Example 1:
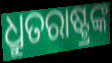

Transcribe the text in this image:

ଧ୍ରୁତରାଷ୍ଟ୍ରଙ୍କ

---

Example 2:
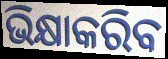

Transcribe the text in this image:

ଭିକ୍ଷାକରିବ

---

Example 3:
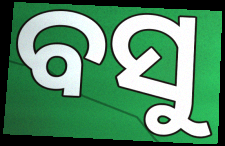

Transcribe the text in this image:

ବସୁ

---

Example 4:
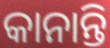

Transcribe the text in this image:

କାନାନ୍ତି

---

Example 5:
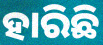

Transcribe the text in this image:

ହାରିଛି